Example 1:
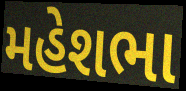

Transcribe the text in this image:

મહેશભા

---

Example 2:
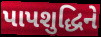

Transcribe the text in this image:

પાપશુદ્ધિને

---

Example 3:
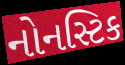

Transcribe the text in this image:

નોનસ્ટિક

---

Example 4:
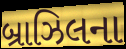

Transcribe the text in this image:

બ્રાઝિલના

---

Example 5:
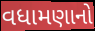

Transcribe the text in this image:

વધામણાનો